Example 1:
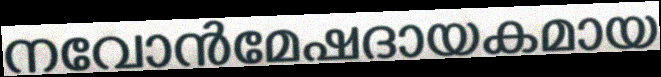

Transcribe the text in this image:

നവോൻമേഷദായകമായ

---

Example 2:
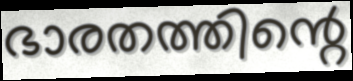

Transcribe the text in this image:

ഭാരതത്തിന്റെ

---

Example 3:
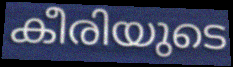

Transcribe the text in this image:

കീരിയുടെ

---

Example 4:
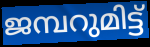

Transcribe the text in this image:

ജമ്പറുമിട്ട്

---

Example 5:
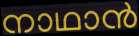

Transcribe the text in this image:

നാഥാൻ